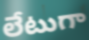
లేటుగా